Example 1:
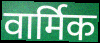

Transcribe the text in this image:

वार्मिक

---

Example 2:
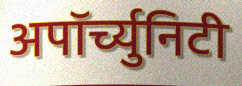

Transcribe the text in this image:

अपॉर्च्युनिटी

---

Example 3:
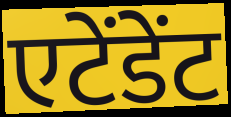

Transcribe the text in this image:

एटेंडेंट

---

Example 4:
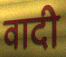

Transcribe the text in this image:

वादी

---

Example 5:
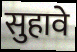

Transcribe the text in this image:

सुहावे